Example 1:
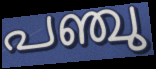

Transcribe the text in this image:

പഞ്ചു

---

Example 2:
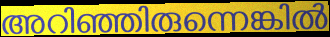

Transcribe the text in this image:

അറിഞ്ഞിരുന്നെങ്കിൽ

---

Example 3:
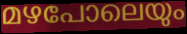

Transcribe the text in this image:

മഴപോലെയും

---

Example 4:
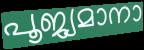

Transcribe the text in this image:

പൂജ്യമാനാ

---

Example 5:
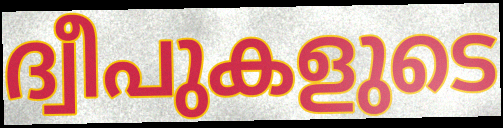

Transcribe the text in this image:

ദ്വീപുകളുടെ